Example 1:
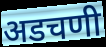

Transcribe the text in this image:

अडचणी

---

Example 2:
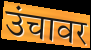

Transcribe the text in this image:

उंचावर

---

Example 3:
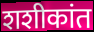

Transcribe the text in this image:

शशीकांत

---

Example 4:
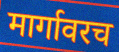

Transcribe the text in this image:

मार्गावरच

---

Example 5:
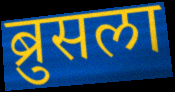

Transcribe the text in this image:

ब्रुसला